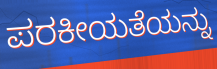
ಪರಕೀಯತೆಯನ್ನು